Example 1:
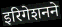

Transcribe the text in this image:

इरिगेशनने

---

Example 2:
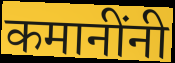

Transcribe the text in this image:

कमानींनी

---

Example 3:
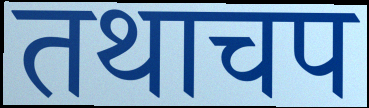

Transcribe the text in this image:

तथाचप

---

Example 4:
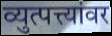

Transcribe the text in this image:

व्युत्पत्त्यांवर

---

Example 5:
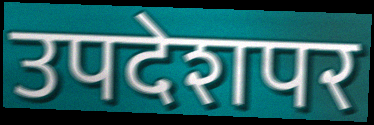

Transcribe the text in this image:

उपदेशपर